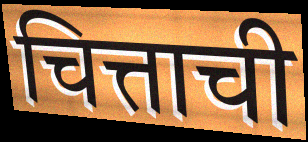
चित्ताची